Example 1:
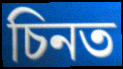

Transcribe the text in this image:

চিনত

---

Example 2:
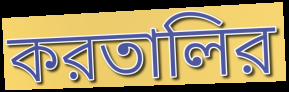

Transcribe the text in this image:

করতালির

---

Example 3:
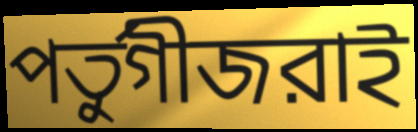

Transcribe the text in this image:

পর্তুগীজরাই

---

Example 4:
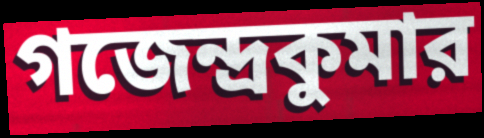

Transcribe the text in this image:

গজেন্দ্রকুমার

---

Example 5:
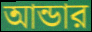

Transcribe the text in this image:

আন্ডার